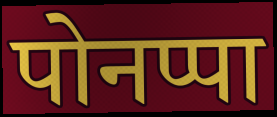
पोनप्‍पा